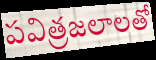
పవిత్రజలాలతో